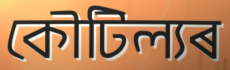
কৌটিল্যৰ